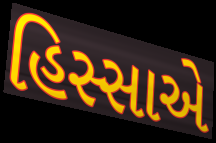
હિસ્સાએ